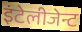
इंटेलीजेन्ट